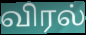
விரல்